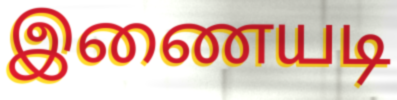
இணையடி